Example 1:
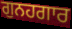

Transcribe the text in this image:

ਗੁਨਹਗਾਰ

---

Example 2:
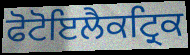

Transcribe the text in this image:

ਫੋਟੋਇਲੈਕਟ੍ਰਿਕ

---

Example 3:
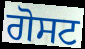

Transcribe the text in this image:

ਗੋਸਟ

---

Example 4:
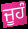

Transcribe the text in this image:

ਜੂਹੰ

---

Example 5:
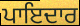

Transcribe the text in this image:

ਪਾਇਦਾਰ